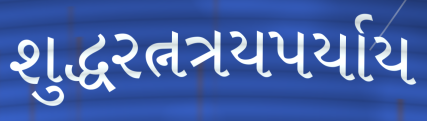
શુદ્ધરત્નત્રયપર્યાય